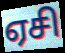
ஏசி